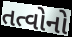
તત્વોનો